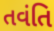
તવંતિ